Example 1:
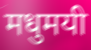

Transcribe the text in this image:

मधुमयी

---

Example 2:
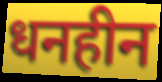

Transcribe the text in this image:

धनहीन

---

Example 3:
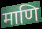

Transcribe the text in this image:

माणि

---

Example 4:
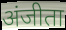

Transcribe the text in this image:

अंजीता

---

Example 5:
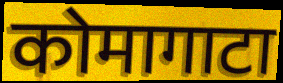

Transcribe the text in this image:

कोमागाटा